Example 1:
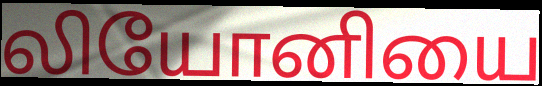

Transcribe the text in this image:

லியோனியை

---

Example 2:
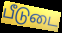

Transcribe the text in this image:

பீடுடை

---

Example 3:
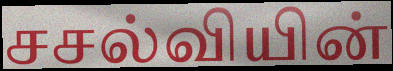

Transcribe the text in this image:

சசல்வியின்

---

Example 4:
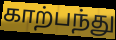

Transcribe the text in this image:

காற்பந்து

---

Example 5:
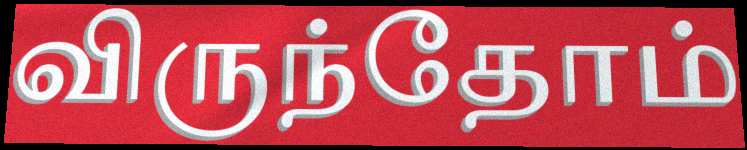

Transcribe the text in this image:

விருந்தோம்